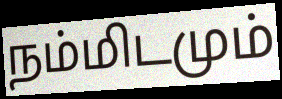
நம்மிடமும்